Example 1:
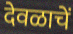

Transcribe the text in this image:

देवळाचें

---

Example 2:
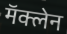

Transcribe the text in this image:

मॅक्लेन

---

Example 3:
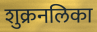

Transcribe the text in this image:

शुक्रनलिका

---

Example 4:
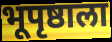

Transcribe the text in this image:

भूपृष्ठाला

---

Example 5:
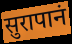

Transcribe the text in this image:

सुरापानं